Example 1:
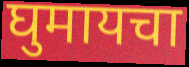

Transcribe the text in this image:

घुमायचा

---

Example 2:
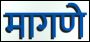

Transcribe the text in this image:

मागणे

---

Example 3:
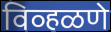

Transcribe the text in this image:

विव्हळणे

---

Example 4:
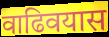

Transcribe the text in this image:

वाढिवयास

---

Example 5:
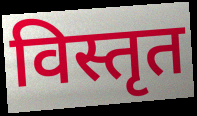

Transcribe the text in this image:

विस्तृत